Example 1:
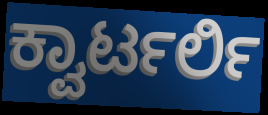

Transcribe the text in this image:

ಕ್ವಾರ್ಟರ್ಲಿ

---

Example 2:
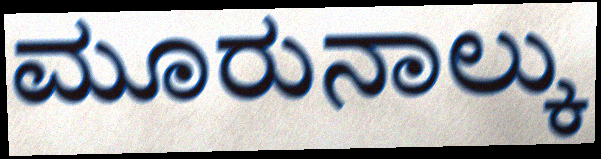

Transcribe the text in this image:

ಮೂರುನಾಲ್ಕು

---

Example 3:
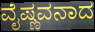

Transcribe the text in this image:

ವೈಷ್ಣವನಾದ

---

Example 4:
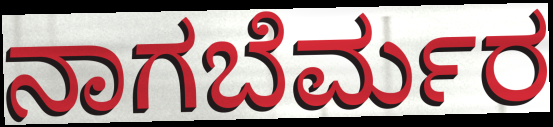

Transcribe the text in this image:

ನಾಗಬೆರ್ಮರ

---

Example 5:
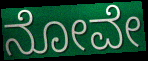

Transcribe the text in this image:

ನೋವೇ